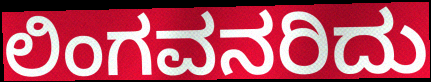
ಲಿಂಗವನರಿದು